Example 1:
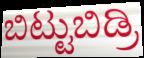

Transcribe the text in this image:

ಬಿಟ್ಟುಬಿಡ್ರಿ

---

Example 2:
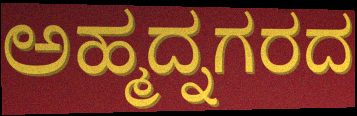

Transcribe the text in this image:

ಅಹ್ಮದ್ನಗರದ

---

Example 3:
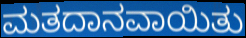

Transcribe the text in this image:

ಮತದಾನವಾಯಿತು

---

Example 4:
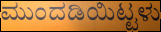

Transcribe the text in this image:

ಮುಂದಡಿಯಿಟ್ಟಳು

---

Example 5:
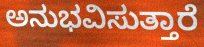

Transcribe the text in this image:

ಅನುಭವಿಸುತ್ತಾರೆ